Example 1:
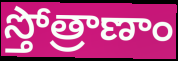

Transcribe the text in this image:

స్తోత్రాణాం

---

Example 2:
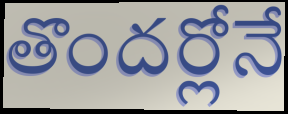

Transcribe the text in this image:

తొందర్లోనే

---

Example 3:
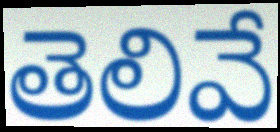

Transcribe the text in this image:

తెలివే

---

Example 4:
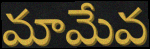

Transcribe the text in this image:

మామేవ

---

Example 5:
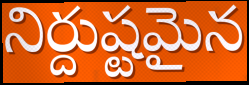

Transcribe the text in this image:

నిర్దుష్టమైన